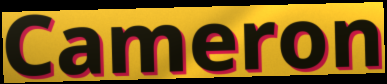
Cameron